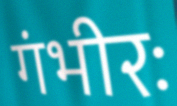
गंभीरः